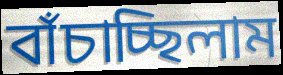
বাঁচাচ্ছিলাম